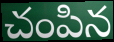
చంపిన